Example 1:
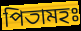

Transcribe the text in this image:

পিতামহঃ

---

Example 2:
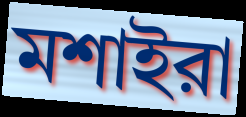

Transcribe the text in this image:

মশাইরা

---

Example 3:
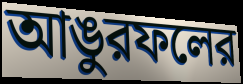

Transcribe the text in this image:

আঙুরফলের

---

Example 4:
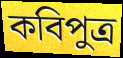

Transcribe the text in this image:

কবিপুত্র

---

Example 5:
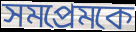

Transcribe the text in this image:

সমপ্রেমকে